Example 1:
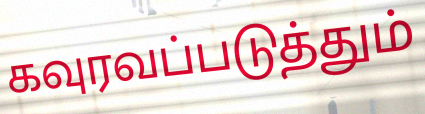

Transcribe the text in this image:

கவுரவப்படுத்தும்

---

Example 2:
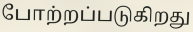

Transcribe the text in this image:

போற்றப்படுகிறது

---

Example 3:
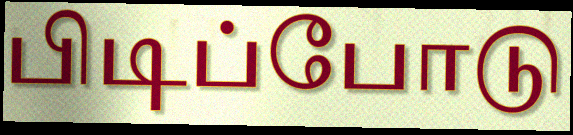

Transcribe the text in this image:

பிடிப்போடு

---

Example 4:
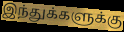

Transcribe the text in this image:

இந்துக்களுக்கு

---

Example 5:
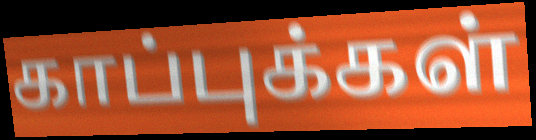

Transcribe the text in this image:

காப்புக்கள்